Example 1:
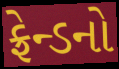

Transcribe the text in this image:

ફ્રેન્ડનો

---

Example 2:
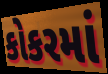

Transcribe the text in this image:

કોકરમાં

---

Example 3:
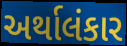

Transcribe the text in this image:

અર્થાલંકાર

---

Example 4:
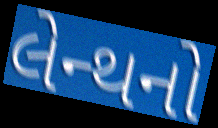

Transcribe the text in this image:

લેન્થનો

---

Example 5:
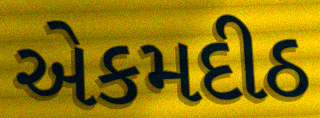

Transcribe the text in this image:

એકમદીઠ